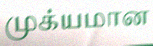
முக்யமான